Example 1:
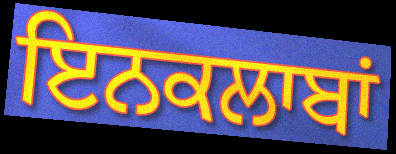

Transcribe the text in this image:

ਇਨਕਲਾਬਾਂ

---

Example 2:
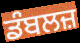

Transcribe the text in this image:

ਡੰਬਲਜ਼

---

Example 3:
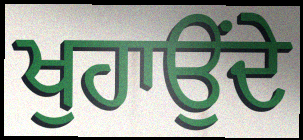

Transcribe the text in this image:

ਖੁਹਾਉਂਦੇ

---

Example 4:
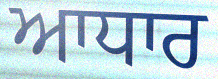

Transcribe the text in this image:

ਆਧਾਰ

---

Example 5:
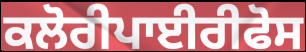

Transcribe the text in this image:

ਕਲੋਰੀਪਾਈਰੀਫੋਸ